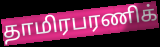
தாமிரபரணிக்